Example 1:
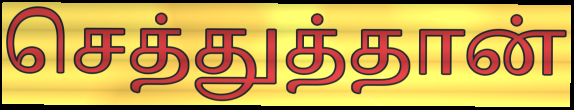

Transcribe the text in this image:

செத்துத்தான்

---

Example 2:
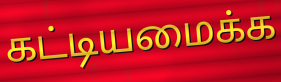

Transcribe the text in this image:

கட்டியமைக்க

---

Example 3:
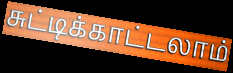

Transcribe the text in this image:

சுட்டிக்காட்டலாம்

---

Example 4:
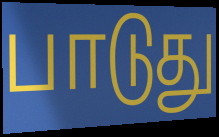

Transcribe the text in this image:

பாடுது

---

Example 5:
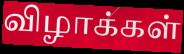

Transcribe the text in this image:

விழாக்கள்